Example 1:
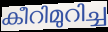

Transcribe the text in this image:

കീറിമുറിച്ച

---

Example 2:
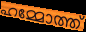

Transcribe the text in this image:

ഹമ്മോത്ത്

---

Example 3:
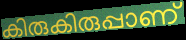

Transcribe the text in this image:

കിരുകിരുപ്പാണ്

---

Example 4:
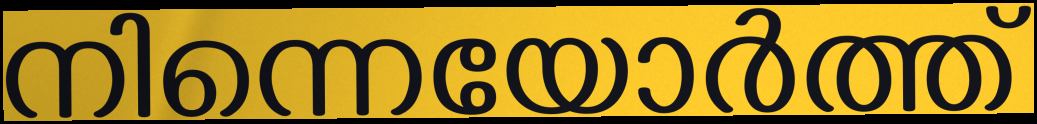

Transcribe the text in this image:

നിന്നെയോർത്ത്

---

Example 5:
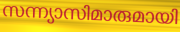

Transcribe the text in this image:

സന്ന്യാസിമാരുമായി